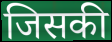
जिसकी